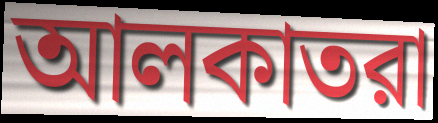
আলকাতরা